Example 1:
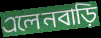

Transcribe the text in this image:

এলেনবাড়ি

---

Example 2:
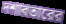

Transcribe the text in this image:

দশাবতারের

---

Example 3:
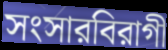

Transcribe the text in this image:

সংসারবিরাগী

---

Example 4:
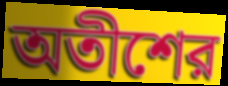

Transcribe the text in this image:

অতীশের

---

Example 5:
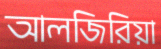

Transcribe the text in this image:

আলজিরিয়া